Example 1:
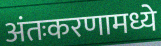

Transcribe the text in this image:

अंतःकरणामध्ये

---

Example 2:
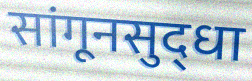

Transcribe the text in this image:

सांगूनसुद्धा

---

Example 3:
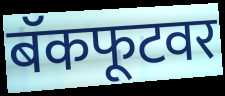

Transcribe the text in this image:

बॅकफूटवर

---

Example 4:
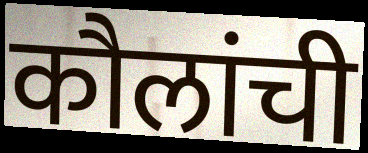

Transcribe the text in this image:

कौलांची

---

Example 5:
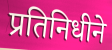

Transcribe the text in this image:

प्रतिनिधीने